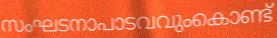
സംഘടനാപാടവവുംകൊണ്ട്